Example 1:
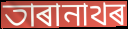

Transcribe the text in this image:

তাৰানাথৰ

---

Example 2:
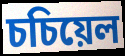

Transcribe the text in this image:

চচিয়েল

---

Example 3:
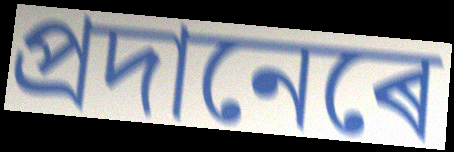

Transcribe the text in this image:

প্ৰদানেৰে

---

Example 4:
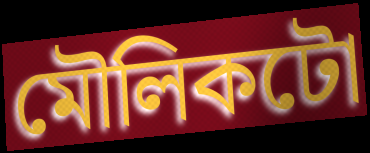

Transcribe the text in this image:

মৌলিকটো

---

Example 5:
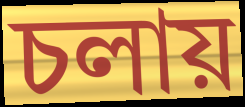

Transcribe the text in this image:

চলায়